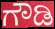
ಗೌಡಿ